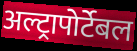
अल्ट्रापोर्टेबल